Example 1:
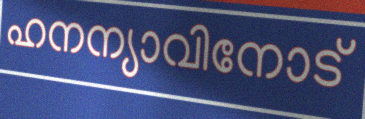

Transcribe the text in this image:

ഹനന്യാവിനോട്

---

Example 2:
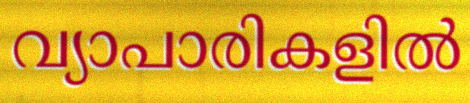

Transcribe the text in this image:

വ്യാപാരികളിൽ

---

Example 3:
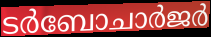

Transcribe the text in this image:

ടർബോചാർജർ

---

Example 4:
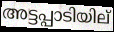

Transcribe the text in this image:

അട്ടപ്പാടിയില്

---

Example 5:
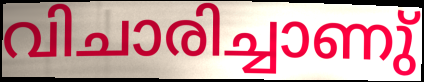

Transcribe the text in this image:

വിചാരിച്ചാണു്